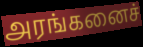
அரங்கனைச்